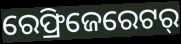
ରେଫ୍ରିଜେରେଟର୍